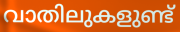
വാതിലുകളുണ്ട്